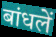
बांधलें